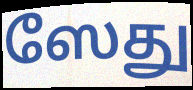
ஸேது